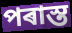
পৰাস্ত